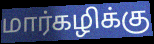
மார்கழிக்கு